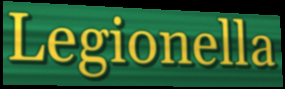
Legionella